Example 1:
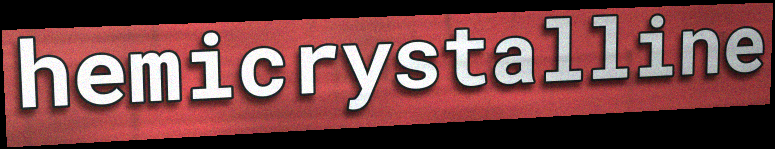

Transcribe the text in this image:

hemicrystalline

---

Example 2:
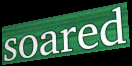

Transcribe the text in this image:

soared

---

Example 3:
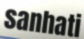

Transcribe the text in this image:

sanhati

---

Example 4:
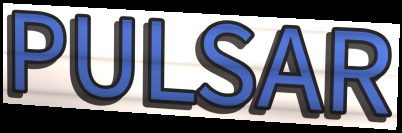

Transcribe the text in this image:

PULSAR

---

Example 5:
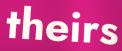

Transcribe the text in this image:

theirs